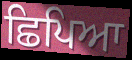
ਛਿਪਿਆ